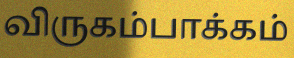
விருகம்பாக்கம்